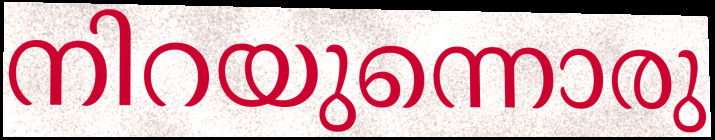
നിറയുന്നൊരു